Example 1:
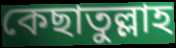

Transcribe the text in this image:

কেছাতুল্লাহ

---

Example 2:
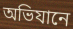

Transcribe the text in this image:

অভিযানে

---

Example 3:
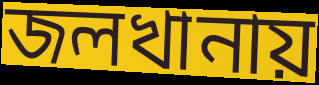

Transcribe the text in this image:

জলখানায়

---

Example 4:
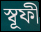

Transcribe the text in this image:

স্বূফী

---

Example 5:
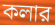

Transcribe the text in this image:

কলার